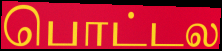
பொட்டல